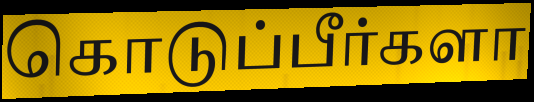
கொடுப்பீர்களா